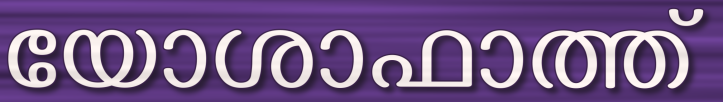
യോശാഫാത്ത്